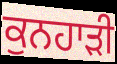
ਕੁਨਹਾੜੀ